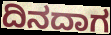
ದಿನದಾಗ